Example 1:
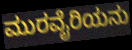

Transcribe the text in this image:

ಮುರವೈರಿಯನು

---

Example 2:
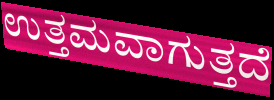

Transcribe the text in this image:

ಉತ್ತಮವಾಗುತ್ತದೆ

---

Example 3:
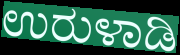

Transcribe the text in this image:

ಉರುಳಾಡಿ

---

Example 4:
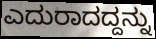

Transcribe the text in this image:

ಎದುರಾದದ್ದನ್ನು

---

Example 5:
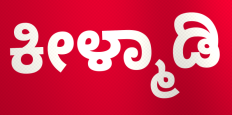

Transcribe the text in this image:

ಕೀಳ್ಮಾಡಿ